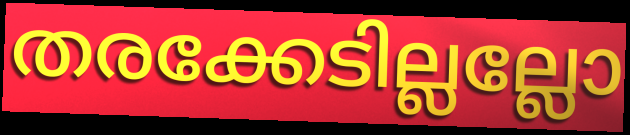
തരക്കേടില്ലല്ലോ